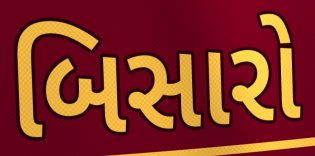
બિસારો